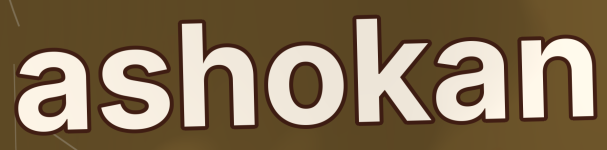
ashokan